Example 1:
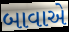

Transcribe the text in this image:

બાવાએ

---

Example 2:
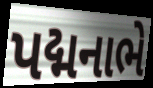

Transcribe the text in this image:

પદ્મનાભે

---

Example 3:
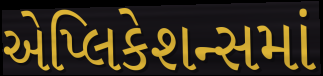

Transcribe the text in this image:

એપ્લિકેશન્સમાં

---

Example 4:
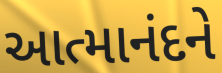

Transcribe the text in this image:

આત્માનંદને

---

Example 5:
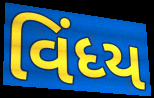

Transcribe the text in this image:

વિંધ્ય